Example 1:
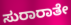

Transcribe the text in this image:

ಸುರಾರಾತೇ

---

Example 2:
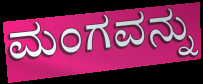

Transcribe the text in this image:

ಮಂಗವನ್ನು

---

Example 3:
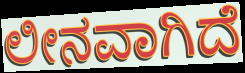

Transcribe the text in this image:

ಲೀನವಾಗಿದೆ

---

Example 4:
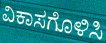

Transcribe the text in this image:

ವಿಕಾಸಗೊಳಿಸಿ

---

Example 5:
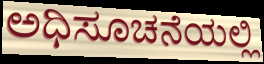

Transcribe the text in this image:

ಅಧಿಸೂಚನೆಯಲ್ಲಿ